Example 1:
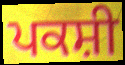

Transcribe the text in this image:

ਪਕਸ਼ੀ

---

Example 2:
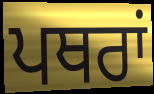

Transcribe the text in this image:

ਪਥਰਾਂ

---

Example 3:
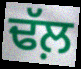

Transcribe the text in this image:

ਢੱਲ਼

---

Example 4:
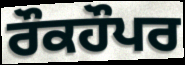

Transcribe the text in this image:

ਰੌਕਹੌਪਰ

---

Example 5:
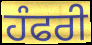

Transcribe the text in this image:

ਹੰਫਰੀ